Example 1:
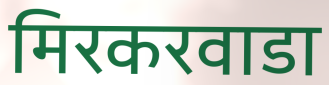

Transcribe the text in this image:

मिरकरवाडा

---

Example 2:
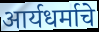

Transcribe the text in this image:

आर्यधर्माचे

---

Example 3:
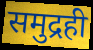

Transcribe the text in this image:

समुद्रही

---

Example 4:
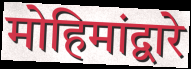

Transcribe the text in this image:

मोहिमांद्वारे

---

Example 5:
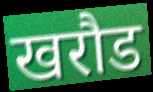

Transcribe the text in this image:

खरौड